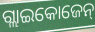
ଗ୍ଲାଇକୋଜେନ୍